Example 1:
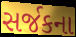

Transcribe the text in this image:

સર્જકના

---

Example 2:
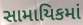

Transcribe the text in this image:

સામાયિકમાં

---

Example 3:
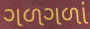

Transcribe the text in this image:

ગળગળાં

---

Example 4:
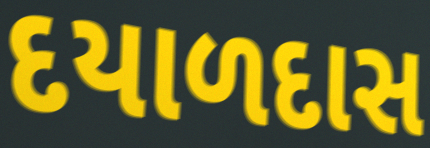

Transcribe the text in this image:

દયાળદાસ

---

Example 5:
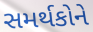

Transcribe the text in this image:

સમર્થકોને